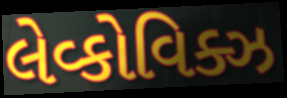
લેવ્કોવિક્ઝ